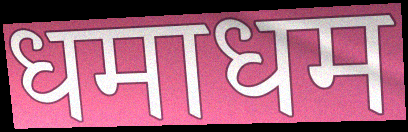
धमाधम